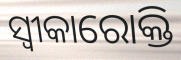
ସ୍ୱୀକାରୋକ୍ତି